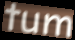
tum